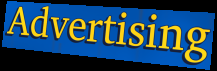
Advertising